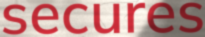
secures